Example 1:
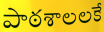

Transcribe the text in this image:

పాఠశాలలకే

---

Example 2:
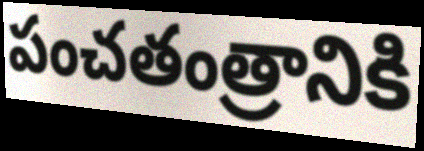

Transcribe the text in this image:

పంచతంత్రానికి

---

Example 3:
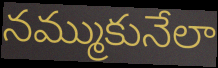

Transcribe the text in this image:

నమ్ముకునేలా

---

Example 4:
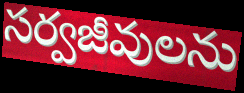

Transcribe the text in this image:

సర్వజీవులను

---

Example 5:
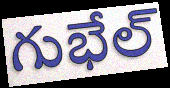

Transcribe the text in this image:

గుభేల్